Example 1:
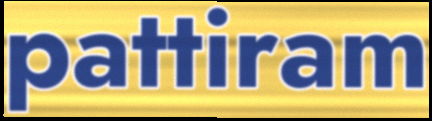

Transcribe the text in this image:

pattiram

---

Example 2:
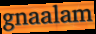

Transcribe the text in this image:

gnaalam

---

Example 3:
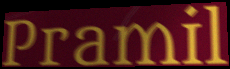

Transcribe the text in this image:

Pramil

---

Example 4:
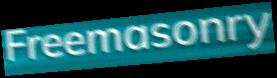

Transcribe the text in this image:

Freemasonry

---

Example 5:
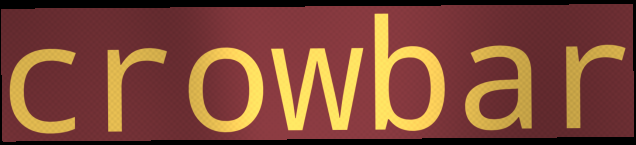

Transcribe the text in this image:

crowbar